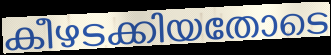
കീഴടക്കിയതോടെ